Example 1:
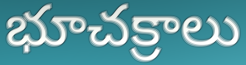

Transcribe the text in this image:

భూచక్రాలు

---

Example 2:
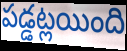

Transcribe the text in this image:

పడ్డట్లయింది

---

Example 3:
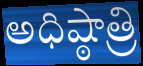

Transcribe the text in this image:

అధిష్ఠాత్రి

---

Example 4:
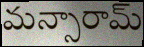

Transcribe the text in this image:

మన్సారామ్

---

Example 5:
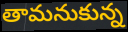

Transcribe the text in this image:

తామనుకున్న